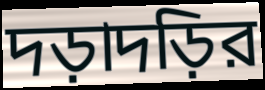
দড়াদড়ির